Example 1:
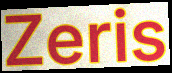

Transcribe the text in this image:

Zeris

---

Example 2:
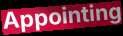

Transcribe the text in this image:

Appointing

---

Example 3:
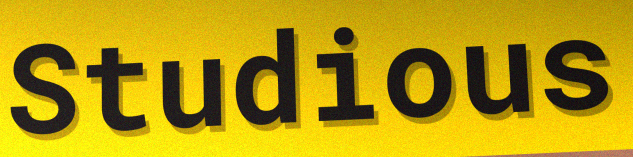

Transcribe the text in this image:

Studious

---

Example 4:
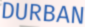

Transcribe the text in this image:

DURBAN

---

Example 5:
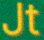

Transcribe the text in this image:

Jt